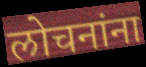
लोचनांना